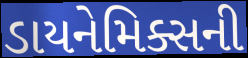
ડાયનેમિક્સની